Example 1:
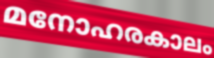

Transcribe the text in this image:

മനോഹരകാലം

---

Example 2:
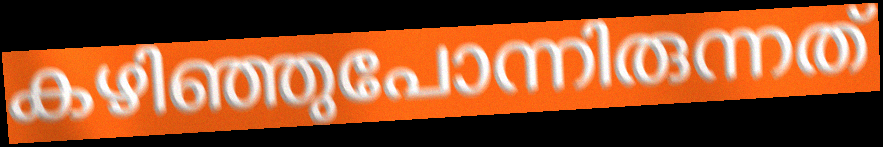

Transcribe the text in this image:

കഴിഞ്ഞുപോന്നിരുന്നത്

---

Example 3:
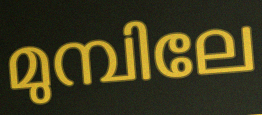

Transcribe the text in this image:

മുമ്പിലേ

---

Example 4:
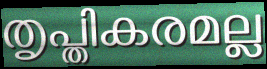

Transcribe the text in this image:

തൃപ്തികരമല്ല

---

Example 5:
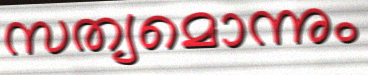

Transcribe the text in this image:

സത്യമൊന്നും